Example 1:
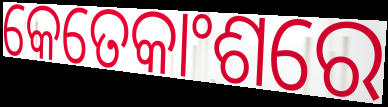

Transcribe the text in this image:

କେତେକାଂଶରେ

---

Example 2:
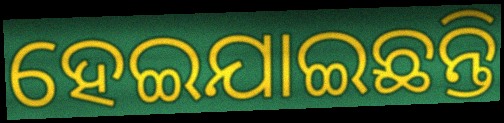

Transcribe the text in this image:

ହେଇଯାଇଛନ୍ତି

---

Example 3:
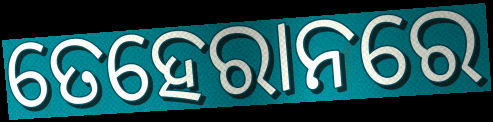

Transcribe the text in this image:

ତେହେରାନରେ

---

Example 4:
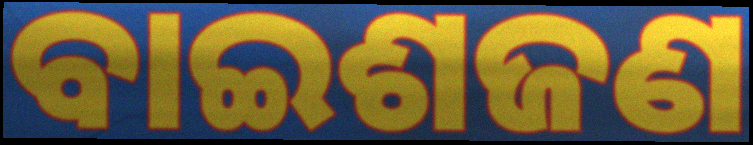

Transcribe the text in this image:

ବାଇଶଜଣ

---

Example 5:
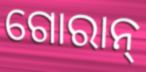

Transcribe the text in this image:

ଗୋରାନ୍